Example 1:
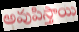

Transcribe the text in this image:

అవుపిస్తాయి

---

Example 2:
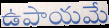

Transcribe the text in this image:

ఉపాయమే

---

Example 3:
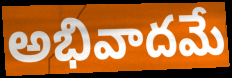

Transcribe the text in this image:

అభివాదమే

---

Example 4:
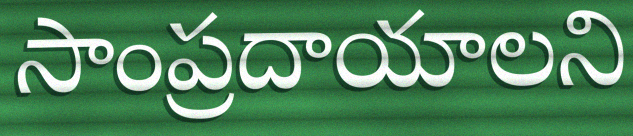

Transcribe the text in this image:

సాంప్రదాయాలని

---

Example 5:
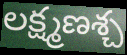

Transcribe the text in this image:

లక్ష్మణశ్చ